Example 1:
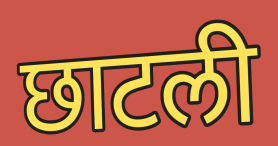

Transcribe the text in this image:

छाटली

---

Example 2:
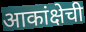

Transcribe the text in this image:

आकांक्षेची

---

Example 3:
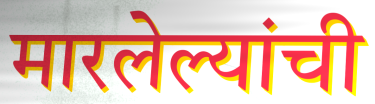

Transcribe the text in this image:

मारलेल्यांची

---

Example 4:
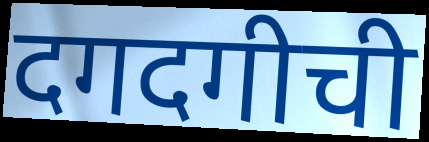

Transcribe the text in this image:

दगदगीची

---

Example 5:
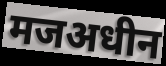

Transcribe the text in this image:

मजअधीन